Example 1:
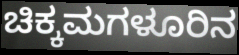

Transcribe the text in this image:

ಚಿಕ್ಕಮಗಳೂರಿನ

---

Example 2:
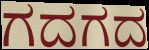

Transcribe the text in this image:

ಗದಗದ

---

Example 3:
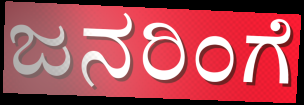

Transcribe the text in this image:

ಜನರಿಂಗೆ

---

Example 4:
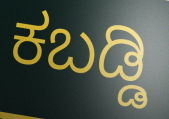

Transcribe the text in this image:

ಕಬಡ್ಡಿ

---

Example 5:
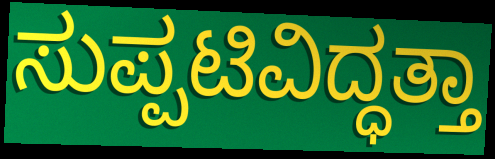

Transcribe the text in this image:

ಸುಪ್ಪಟಿವಿದ್ಧತ್ತಾ